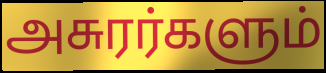
அசுரர்களும்